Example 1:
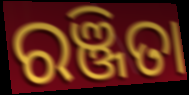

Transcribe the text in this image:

ରଞ୍ଜିତା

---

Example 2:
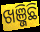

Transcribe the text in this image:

ଖଞ୍ଜିଛି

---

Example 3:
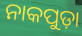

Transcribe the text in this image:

ନାକପୁଡ଼ା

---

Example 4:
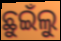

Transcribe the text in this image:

ଛୁଇଁଲୁ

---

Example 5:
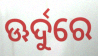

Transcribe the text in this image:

ଊର୍ଦୁରେ